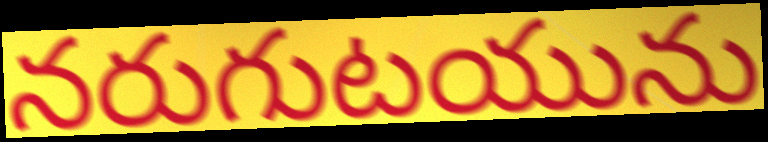
నరుగుటయును